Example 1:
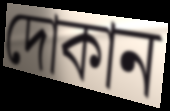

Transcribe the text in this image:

দোকান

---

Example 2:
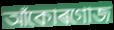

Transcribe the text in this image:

আঁকোৰগোজ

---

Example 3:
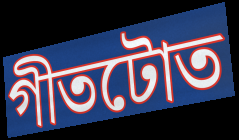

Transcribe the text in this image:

গীতটোত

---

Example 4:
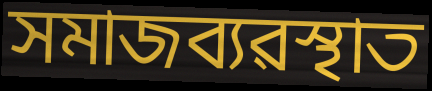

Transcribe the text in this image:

সমাজব্যৱস্থাত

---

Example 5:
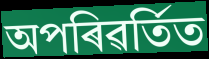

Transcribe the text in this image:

অপৰিৱৰ্তিত